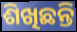
ଶିଖିଛନ୍ତି